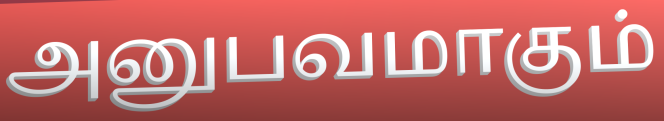
அனுபவமாகும்